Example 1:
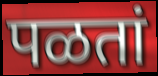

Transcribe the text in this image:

पळतां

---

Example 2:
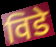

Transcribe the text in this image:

विडे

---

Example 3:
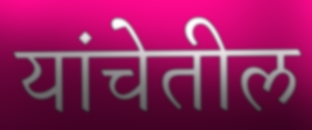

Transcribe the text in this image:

यांचेतील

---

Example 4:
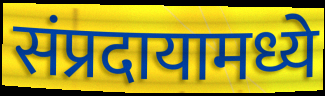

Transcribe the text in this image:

संप्रदायामध्ये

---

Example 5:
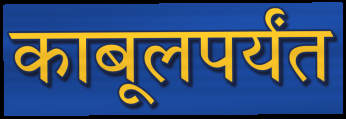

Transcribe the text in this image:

काबूलपर्यंत